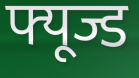
फ्यूज्ड